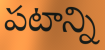
పటాన్ని